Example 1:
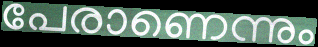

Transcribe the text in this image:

പേരാണെന്നും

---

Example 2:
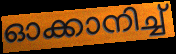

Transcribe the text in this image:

ഓക്കാനിച്ച്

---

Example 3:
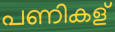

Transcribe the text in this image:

പണികള്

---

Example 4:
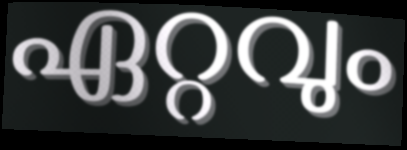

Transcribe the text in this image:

ഏറ്റവും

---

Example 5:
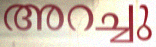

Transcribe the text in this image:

അറച്ചു